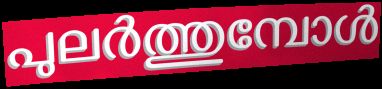
പുലർത്തുമ്പോൾ